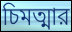
চিমত্মার